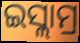
ଇସ୍ଲାମ୍ର